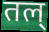
तल्